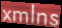
xmlns